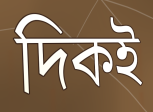
দিকই